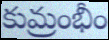
కుమ్రంభీం